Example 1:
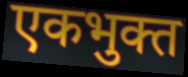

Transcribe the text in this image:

एकभुक्त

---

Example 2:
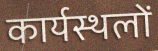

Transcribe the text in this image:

कार्यस्थलों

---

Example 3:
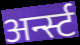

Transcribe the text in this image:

अर्न्स्ट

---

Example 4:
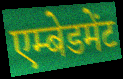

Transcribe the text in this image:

एम्बेडमेंट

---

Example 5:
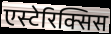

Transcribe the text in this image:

एस्टेरिक्सिस